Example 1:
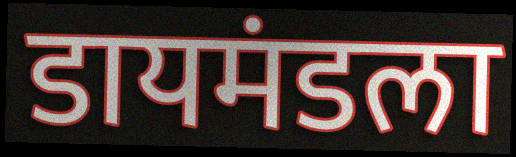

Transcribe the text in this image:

डायमंडला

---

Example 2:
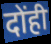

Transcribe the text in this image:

दोंही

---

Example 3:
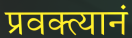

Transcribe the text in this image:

प्रवक्त्यानं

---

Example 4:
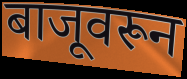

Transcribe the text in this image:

बाजूवरून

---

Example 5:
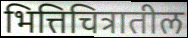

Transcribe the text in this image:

भित्तिचित्रातील